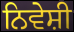
ਨਿਵੇਸ਼ੀ